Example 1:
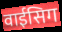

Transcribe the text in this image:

वाईसिग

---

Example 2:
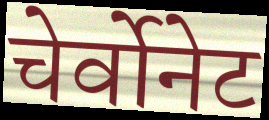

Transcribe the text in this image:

चेर्वोनेट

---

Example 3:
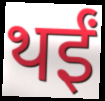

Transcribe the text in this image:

थईं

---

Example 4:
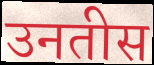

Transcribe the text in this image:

उनतीस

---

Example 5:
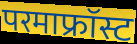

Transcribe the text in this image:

परमाफ्रॉस्ट